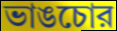
ভাঙচোর